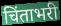
चिंताभरी